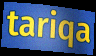
tariqa